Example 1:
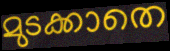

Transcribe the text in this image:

മുടക്കാതെ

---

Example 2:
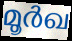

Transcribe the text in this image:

മൂർഖ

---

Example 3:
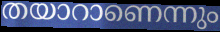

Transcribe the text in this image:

തയാറാണെന്നും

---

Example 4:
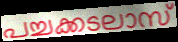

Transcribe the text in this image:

പച്ചക്കടലാസ്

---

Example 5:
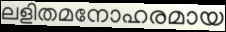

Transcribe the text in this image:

ലളിതമനോഹരമായ